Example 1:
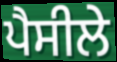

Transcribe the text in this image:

ਪੈਸੀਲੇ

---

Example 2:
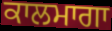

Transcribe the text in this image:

ਕਾਲਮਾਗਾ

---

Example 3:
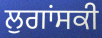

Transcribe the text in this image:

ਲੁਗਾਂਸਕੀ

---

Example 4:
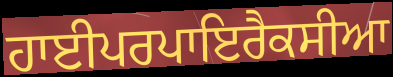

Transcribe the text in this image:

ਹਾਈਪਰਪਾਇਰੈਕਸੀਆ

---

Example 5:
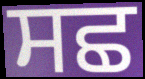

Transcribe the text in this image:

ਸਛ